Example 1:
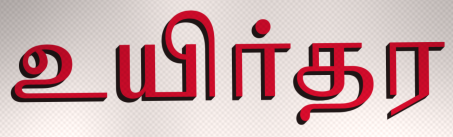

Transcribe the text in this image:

உயிர்தர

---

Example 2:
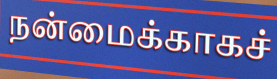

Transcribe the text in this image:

நன்மைக்காகச்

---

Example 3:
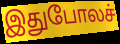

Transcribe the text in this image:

இதுபோலச்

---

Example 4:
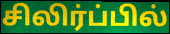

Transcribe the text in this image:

சிலிர்ப்பில்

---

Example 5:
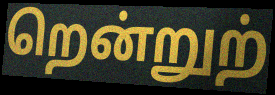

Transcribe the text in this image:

றென்றுற்